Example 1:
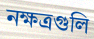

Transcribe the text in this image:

নক্ষত্রগুলি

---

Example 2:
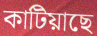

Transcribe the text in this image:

কাটিয়াছে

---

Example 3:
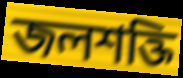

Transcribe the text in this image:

জলশক্তি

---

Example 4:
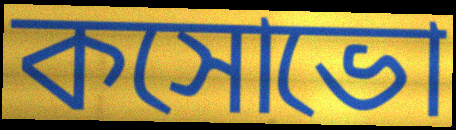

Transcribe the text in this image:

কসোভো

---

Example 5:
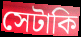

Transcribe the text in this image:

সেটাকি